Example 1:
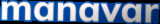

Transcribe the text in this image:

manavar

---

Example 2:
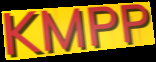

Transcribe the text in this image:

KMPP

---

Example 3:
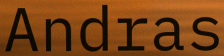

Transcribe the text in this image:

Andras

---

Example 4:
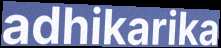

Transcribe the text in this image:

adhikarika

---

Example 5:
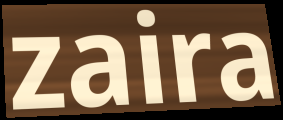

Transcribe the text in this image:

zaira